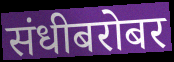
संधीबरोबर